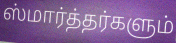
ஸ்மார்த்தர்களும்